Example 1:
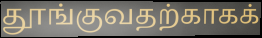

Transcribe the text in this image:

தூங்குவதற்காகக்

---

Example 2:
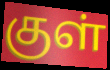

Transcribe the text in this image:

குள்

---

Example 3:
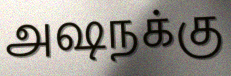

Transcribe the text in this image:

அஷநக்கு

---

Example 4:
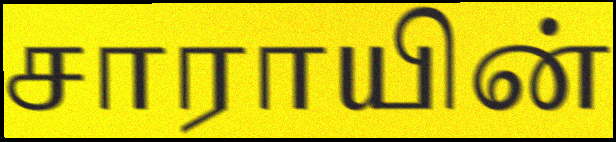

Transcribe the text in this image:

சாராயின்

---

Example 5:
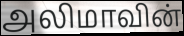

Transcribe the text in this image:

அலிமாவின்